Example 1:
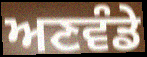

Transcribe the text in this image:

ਅਣਵੰਡੇ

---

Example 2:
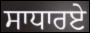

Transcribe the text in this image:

ਸਾਧਾਰਏ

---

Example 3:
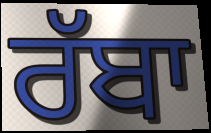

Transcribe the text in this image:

ਰੱਬਾ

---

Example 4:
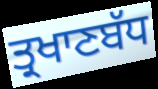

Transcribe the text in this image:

ਤ੍ਰਖਾਣਬੱਧ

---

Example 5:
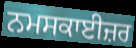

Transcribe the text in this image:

ਨਮਸਕਾਈਜ਼ਰ